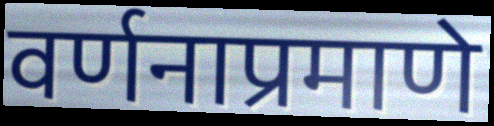
वर्णनाप्रमाणे